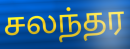
சலந்தர